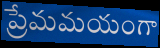
ప్రేమమయంగా